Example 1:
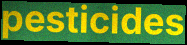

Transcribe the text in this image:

pesticides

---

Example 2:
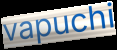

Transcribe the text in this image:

vapuchi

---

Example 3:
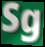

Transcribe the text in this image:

Sg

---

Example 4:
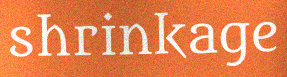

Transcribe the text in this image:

shrinkage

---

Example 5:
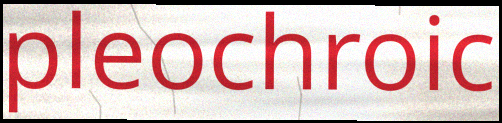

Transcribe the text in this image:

pleochroic